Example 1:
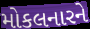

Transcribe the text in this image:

મોકલનારને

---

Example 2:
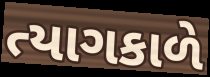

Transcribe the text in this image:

ત્યાગકાળે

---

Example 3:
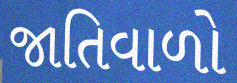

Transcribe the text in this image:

જાતિવાળો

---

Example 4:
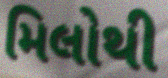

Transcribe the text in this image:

મિલોથી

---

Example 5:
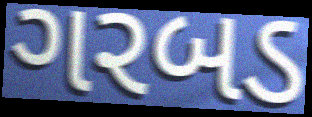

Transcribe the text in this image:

ગરબડ